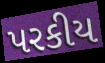
પરકીય